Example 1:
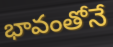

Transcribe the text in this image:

భావంతోనే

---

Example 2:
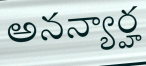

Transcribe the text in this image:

అనన్యార్హ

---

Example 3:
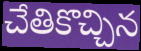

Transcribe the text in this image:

చేతికొచ్చిన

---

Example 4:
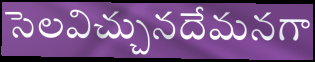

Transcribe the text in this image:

సెలవిచ్చునదేమనగా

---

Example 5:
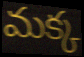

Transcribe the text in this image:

మక్క